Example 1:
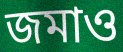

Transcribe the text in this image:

জমাও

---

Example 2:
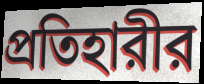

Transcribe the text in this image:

প্রতিহারীর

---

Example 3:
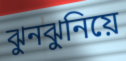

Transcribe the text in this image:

ঝুনঝুনিয়ে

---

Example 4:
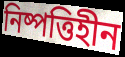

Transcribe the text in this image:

নিষ্পত্তিহীন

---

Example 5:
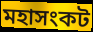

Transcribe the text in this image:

মহাসংকট